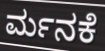
ರ್ಮನಕೆ